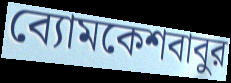
ব্যোমকেশবাবুর